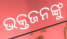
ଭକ୍ତଜନଙ୍କୁ